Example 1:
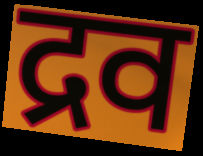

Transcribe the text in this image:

द्रव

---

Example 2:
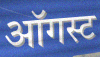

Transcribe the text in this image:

ऑगस्ट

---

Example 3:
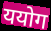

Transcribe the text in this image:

ययोग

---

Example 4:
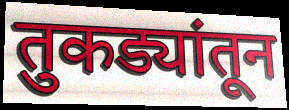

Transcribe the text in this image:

तुकड्यांतून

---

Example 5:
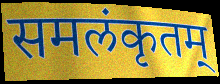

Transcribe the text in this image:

समलंकृतम्